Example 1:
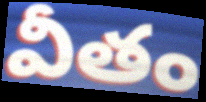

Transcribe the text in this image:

వీతం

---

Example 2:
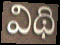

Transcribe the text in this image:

విథి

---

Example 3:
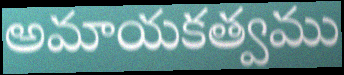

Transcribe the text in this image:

అమాయకత్వము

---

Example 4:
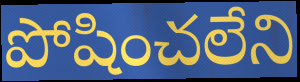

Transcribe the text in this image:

పోషించలేని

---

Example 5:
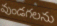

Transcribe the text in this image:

వుండగలను